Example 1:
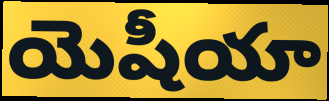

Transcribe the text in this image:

యెషీయా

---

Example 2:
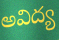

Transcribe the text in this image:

అవిద్య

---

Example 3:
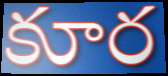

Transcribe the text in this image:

కూర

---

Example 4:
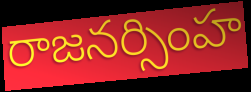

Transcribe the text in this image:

రాజనర్సింహ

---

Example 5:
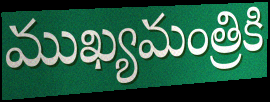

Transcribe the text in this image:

ముఖ్యమంత్రికి